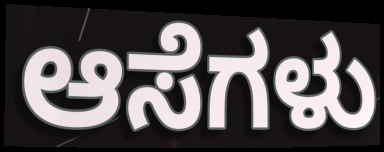
ಆಸೆಗಳು